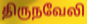
திருநவேலி